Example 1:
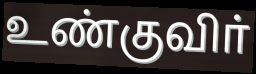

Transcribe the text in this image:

உண்குவிர்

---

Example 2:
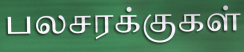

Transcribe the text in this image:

பலசரக்குகள்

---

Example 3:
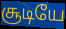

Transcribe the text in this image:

சூடியே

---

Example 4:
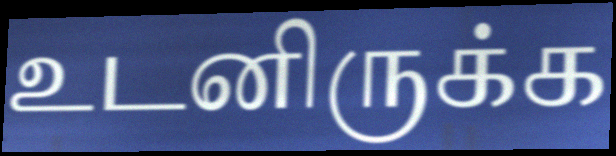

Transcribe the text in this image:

உடனிருக்க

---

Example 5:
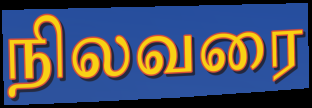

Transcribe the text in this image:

நிலவரை